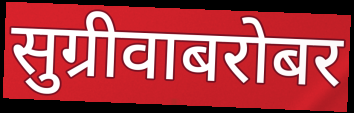
सुग्रीवाबरोबर